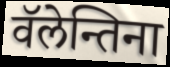
वॅलेन्तिना